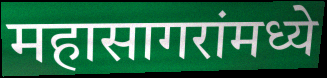
महासागरांमध्ये